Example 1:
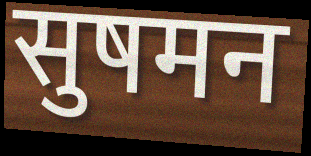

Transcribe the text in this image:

सुषमन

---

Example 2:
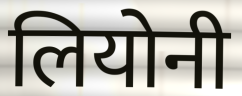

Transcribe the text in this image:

लियोनी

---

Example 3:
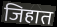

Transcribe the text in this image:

जिहात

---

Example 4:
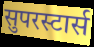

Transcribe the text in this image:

सुपरस्टार्स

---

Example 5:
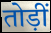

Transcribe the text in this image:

तोड़ीं